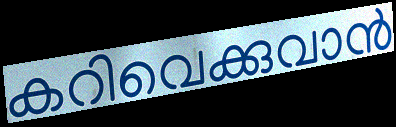
കറിവെക്കുവാൻ